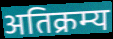
अतिक्रम्य